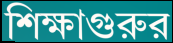
শিক্ষাগুরুর